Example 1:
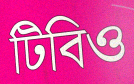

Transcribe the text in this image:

টিবিও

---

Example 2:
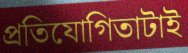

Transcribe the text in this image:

প্রতিযোগিতাটাই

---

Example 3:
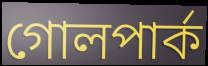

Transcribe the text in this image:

গোলপার্ক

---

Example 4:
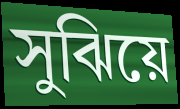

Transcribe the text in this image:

সুঝিয়ে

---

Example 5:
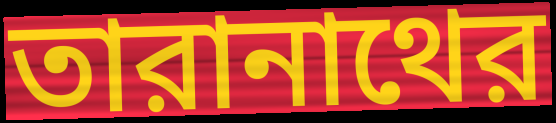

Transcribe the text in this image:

তারানাথের